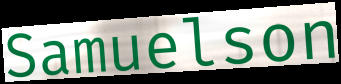
Samuelson